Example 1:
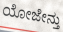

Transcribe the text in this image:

ಯೋಜೇನ್ತು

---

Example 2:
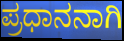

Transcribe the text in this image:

ಪ್ರಧಾನನಾಗಿ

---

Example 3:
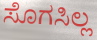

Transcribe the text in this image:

ಸೊಗಸಿಲ್ಲ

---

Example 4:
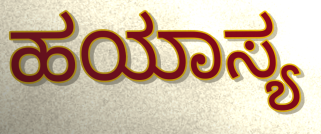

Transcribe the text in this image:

ಹಯಾಸ್ಯ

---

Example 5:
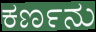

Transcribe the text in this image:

ಕರ್ಣನು